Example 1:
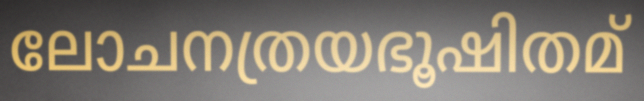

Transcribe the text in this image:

ലോചനത്രയഭൂഷിതമ്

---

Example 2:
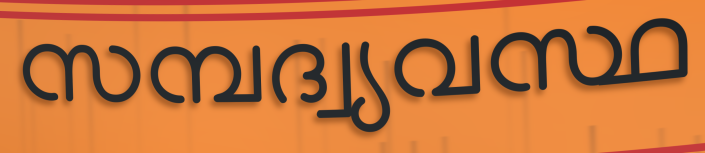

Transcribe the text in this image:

സമ്പദ്വ്യവസ്ഥ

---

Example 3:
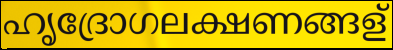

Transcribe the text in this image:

ഹൃദ്രോഗലക്ഷണങ്ങള്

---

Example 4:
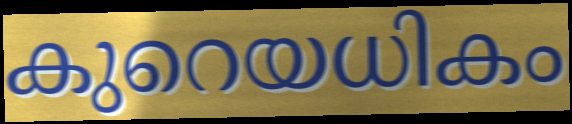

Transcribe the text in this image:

കുറെയധികം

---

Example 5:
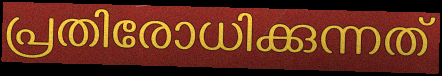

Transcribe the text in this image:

പ്രതിരോധിക്കുന്നത്